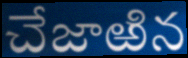
చేజాఱిన